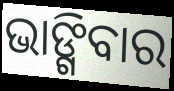
ଭାଙ୍ଗିବାର